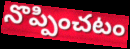
నొప్పించటం